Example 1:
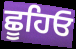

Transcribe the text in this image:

ਛੂਹਿਓ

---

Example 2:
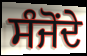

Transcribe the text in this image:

ਸੰਜੋਂਦੇ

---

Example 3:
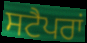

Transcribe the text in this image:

ਸਟੈਪਰਾਂ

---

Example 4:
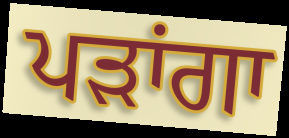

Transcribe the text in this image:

ਪੜਾਂਗਾ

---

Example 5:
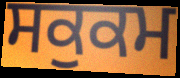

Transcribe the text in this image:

ਸਕੁਕਮ